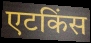
एटकिंस